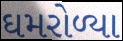
ઘમરોળ્યા